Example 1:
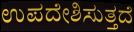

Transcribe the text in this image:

ಉಪದೇಶಿಸುತ್ತದೆ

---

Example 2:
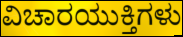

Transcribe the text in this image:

ವಿಚಾರಯುಕ್ತಿಗಳು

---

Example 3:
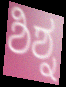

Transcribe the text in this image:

ಶಿಶ್ನ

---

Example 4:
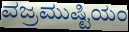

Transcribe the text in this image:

ವಜ್ರಮುಷ್ಟಿಯಂ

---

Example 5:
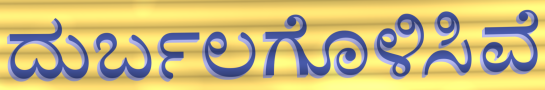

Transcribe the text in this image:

ದುರ್ಬಲಗೊಳಿಸಿವೆ